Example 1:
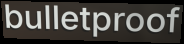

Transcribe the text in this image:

bulletproof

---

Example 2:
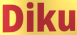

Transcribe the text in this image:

Diku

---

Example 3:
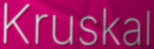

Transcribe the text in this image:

Kruskal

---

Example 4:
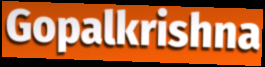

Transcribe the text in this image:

Gopalkrishna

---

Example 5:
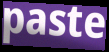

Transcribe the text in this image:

paste